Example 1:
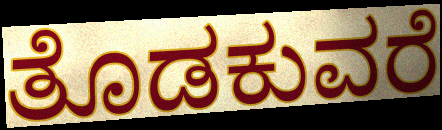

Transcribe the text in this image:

ತೊಡಕುವರೆ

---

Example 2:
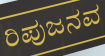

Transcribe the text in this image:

ರಿಪುಜನವ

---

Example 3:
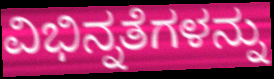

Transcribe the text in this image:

ವಿಭಿನ್ನತೆಗಳನ್ನು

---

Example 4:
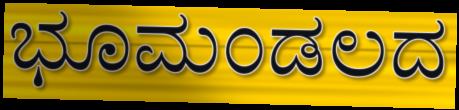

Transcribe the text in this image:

ಭೂಮಂಡಲದ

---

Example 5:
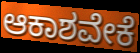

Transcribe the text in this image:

ಆಕಾಶವೇಕೆ